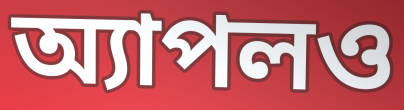
অ্যাপলও